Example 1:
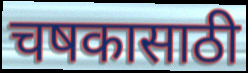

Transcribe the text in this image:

चषकासाठी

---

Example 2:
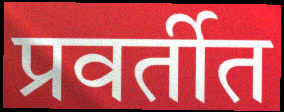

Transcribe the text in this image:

प्रवर्तीत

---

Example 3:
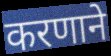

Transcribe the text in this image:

करणाने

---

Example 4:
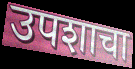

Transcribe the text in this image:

उपशाचा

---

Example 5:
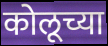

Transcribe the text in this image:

कोलूच्या